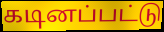
கடினப்பட்டு